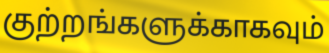
குற்றங்களுக்காகவும்